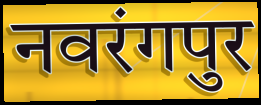
नवरंगपुर